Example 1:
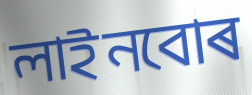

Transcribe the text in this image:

লাইনবোৰ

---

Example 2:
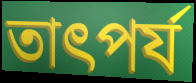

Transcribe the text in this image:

তাৎপৰ্য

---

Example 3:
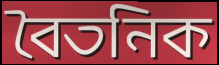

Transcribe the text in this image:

বৈতনিক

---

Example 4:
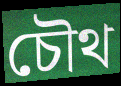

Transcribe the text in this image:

চৌথ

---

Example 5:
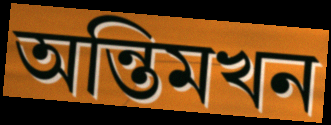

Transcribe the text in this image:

অন্তিমখন